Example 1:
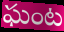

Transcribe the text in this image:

ఘంట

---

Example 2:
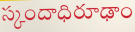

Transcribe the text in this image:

స్కందాధిరూఢాం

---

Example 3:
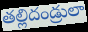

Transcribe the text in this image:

తల్లిదండ్రులా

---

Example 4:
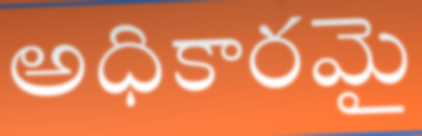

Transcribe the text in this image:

అధికారమై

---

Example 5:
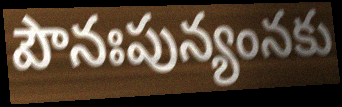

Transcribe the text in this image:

పౌనఃపున్యంనకు